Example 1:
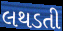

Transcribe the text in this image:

લથડતી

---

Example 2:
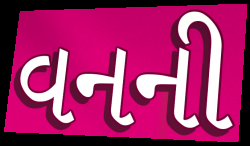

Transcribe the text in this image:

વનની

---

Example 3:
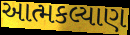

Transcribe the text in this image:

આત્મકલ્યાણ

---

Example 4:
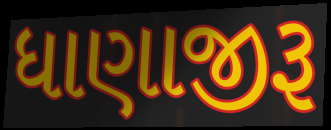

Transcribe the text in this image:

ધાણાજીરૂ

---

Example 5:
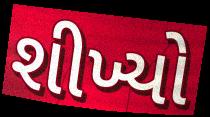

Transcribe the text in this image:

શીખ્યો